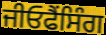
ਜੀਓਫੈਂਸਿੰਗ